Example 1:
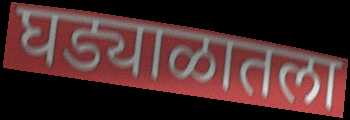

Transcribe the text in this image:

घड्याळातला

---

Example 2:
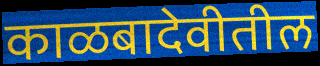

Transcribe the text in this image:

काळबादेवीतील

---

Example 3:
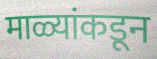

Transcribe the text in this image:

माळ्यांकडून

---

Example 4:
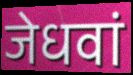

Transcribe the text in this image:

जेधवां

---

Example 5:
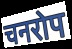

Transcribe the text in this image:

चनरोप